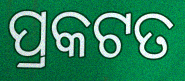
ପ୍ରକଟତ